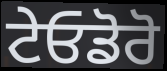
ਟੇਓਡੋਰੋ